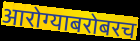
आरोग्याबरोबरच